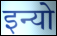
इन्यो